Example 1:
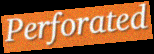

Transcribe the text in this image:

Perforated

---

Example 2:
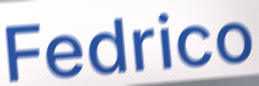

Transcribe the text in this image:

Fedrico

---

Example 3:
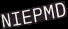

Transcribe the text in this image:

NIEPMD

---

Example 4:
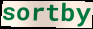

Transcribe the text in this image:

sortby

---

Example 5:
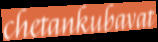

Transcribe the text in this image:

chetankubavat